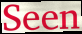
Seen